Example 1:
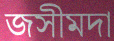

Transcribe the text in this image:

জসীমদা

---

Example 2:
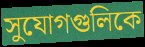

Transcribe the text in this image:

সুযোগগুলিকে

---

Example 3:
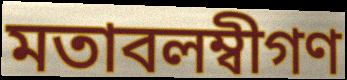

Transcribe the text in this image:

মতাবলম্বীগণ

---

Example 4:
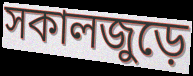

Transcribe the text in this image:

সকালজুড়ে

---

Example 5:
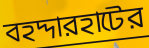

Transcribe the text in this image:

বহদ্দারহাটের